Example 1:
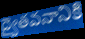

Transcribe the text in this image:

ద్వైతవనానికి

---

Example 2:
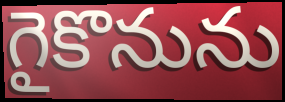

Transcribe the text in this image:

గైకొనును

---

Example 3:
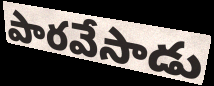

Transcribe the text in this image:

పారవేసాడు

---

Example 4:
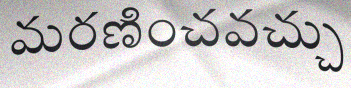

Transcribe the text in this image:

మరణించవచ్చు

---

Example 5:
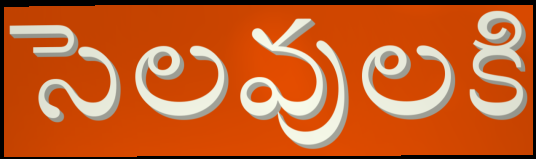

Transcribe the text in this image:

సెలవులకి